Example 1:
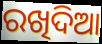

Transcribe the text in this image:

ରଖିଦିଆ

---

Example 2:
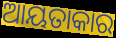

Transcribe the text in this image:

ଆୟତାକାର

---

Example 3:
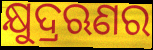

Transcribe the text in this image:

କ୍ଷୁଦ୍ରଋଣର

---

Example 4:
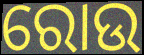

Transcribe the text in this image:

ରୋଉ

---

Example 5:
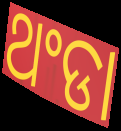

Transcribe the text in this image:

ଥଂଡା